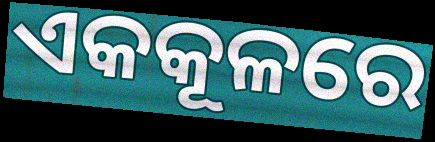
ଏକକୂଳରେ